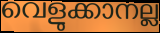
വെളുക്കാനല്ല